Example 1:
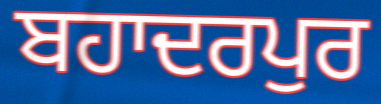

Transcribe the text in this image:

ਬਹਾਦਰਪੁਰ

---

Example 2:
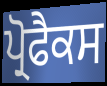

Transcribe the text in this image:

ਪ੍ਰੋਫੈਕਸ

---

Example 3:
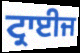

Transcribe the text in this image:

ਟ੍ਰਾਈਜ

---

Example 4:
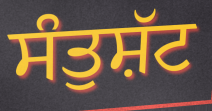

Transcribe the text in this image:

ਸੰਤੁਸ਼ੱਟ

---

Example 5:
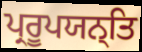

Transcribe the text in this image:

ਪ੍ਰਰੂਪਯਨ੍ਤਿ